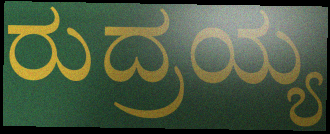
ರುದ್ರಯ್ಯ